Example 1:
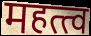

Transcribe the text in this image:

महत्‍त्‍व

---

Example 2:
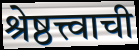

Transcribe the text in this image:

श्रेष्ठत्त्वाची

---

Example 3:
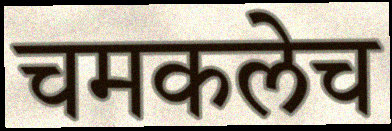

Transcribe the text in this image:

चमकलेच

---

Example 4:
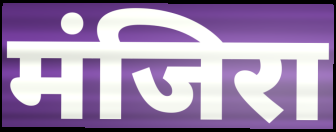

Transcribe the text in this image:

मंजिरा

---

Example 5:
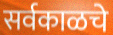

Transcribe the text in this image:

सर्वकाळचे